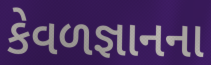
કેવળજ્ઞાનના